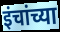
इंचांच्या